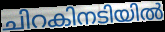
ചിറകിനടിയിൽ